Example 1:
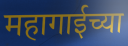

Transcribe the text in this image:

महागाईच्या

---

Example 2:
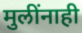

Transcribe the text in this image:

मुलींनाही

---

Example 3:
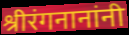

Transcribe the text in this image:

श्रीरंगनानांनी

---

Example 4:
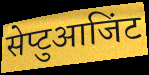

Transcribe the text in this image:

सेप्टुआजिंट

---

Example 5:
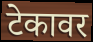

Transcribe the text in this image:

टेकावर